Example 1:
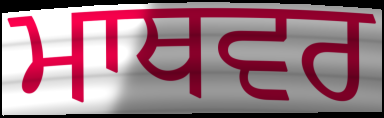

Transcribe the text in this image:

ਮਾਥਵਰ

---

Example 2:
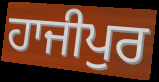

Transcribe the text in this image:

ਹਾਜੀਪੁਰ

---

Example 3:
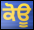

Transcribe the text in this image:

ਕੋਊ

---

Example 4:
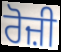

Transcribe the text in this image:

ਰੋਜ਼ੀ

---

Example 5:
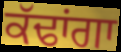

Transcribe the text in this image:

ਕੱਢਾਂਗਾ